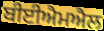
ਬੀਈਐਮਐਲ